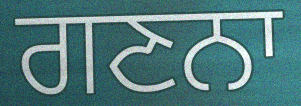
ਗਣਨਾ